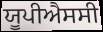
ਯੂਪੀਐਸਸੀ